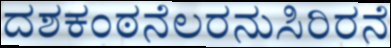
ದಶಕಂಠನೆಲರನುಸಿರಿರನೆ